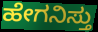
ಹೇಗನಿಸ್ತು